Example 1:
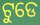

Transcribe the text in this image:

ଟୁଡେ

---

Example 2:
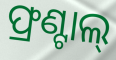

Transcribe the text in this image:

ଫ୍ରଣ୍ଟାଲ୍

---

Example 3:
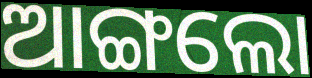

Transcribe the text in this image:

ଆଙ୍ଗଲୋ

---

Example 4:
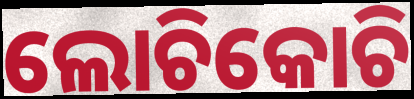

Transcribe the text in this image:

ଲୋଚିକୋଚି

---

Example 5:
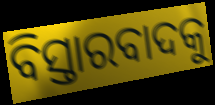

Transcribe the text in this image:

ବିସ୍ତାରବାଦକୁ